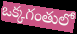
ఒక్కగంతులో